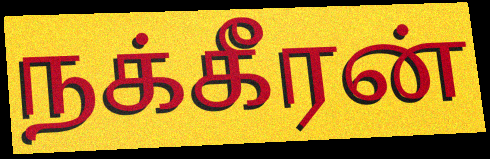
நக்கீரன்